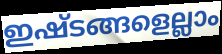
ഇഷ്ടങ്ങളെല്ലാം